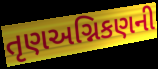
તૃણઅગ્નિકણની